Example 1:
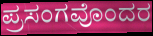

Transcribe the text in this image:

ಪ್ರಸಂಗವೊಂದರ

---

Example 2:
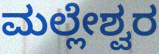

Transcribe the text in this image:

ಮಲ್ಲೇಶ್ವರ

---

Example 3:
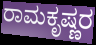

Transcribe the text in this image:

ರಾಮಕೃಷ್ಣರ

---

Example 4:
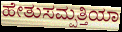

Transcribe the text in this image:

ಹೇತುಸಮ್ಪತ್ತಿಯಾ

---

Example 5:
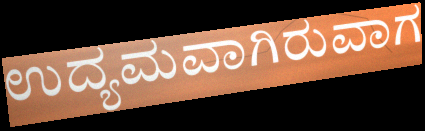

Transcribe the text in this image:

ಉದ್ಯಮವಾಗಿರುವಾಗ